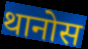
थानोस